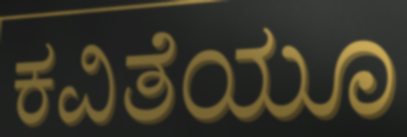
ಕವಿತೆಯೂ